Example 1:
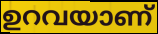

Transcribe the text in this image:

ഉറവയാണ്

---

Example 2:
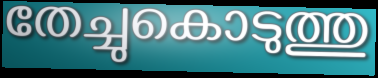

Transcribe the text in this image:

തേച്ചുകൊടുത്തു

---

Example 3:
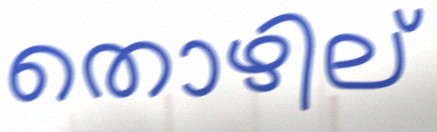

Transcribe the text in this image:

തൊഴില്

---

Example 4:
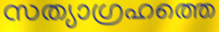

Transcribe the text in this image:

സത്യാഗ്രഹത്തെ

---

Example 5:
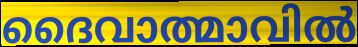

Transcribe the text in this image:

ദൈവാത്മാവിൽ